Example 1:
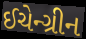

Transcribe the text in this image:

ઈચેન્ગ્રીન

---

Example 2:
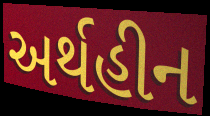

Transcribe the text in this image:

અર્થહીન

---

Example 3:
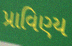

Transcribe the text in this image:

પ્રાવિણ્ય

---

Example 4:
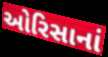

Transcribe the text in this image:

ઓરિસાનાં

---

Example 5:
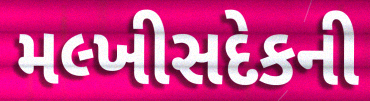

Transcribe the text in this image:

મલ્ખીસદેકની